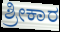
ಶ್ರೀಕಾರ